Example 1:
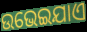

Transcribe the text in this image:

ଉଭେଇଯାଏ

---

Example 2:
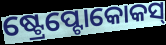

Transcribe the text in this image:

ଷ୍ଟ୍ରେପ୍ଟୋକୋକସ୍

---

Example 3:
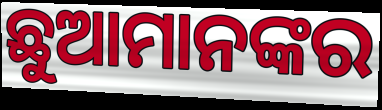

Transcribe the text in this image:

ଛୁଆମାନଙ୍କର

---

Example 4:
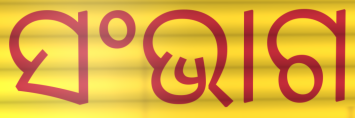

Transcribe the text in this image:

ସଂଭାଗ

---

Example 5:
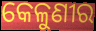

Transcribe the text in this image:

କେଳୁଣୀର